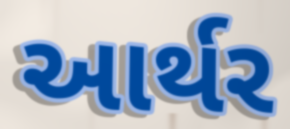
આર્થર